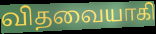
விதவையாகி